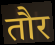
तौर